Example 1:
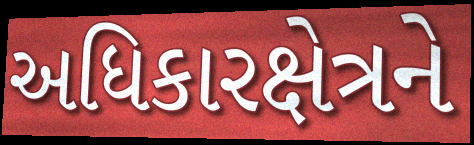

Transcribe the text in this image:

અધિકારક્ષેત્રને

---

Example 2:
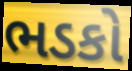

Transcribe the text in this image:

ભડકો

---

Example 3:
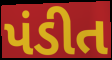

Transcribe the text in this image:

પંડીત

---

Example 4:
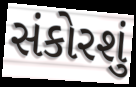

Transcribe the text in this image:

સંકોરશું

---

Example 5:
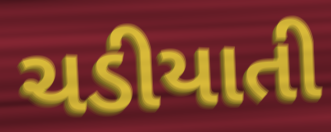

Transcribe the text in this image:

ચડીયાતી